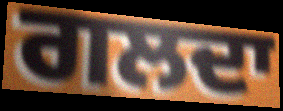
ਗਲਦਾ